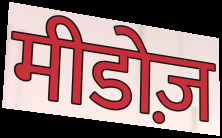
मीडोज़